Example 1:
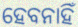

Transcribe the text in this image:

ହେବନାହିଁ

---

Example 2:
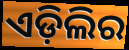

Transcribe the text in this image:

ଏଡ଼ିଲିର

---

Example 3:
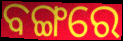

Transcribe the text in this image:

ବଙ୍ଗରେ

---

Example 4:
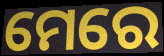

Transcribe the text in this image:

ମେରେ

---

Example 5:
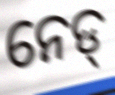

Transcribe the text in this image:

ନେଡ୍